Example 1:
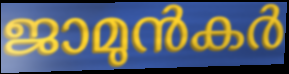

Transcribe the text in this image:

ജാമുൻകർ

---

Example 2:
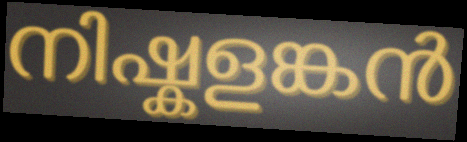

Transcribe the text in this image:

നിഷ്കളങ്കൻ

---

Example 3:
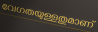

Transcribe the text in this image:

വേഗതയുള്ളതുമാണ്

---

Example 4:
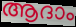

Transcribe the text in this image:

ആദാം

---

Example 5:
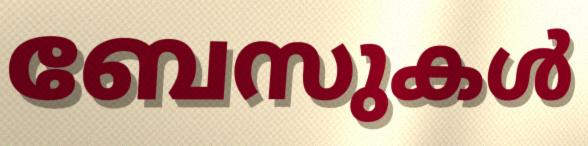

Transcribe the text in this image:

ബേസുകൾ